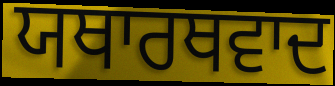
ਯਥਾਰਥਵਾਦ